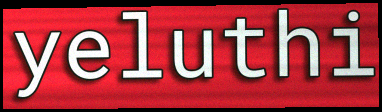
yeluthi